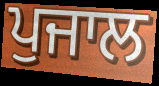
ਪੁਜਾਲ